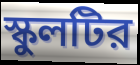
স্কুলটির